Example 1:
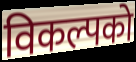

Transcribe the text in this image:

विकल्पको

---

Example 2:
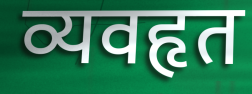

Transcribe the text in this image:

व्यवहृत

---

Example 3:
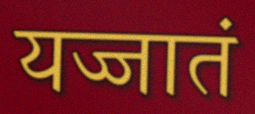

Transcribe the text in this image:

यज्जातं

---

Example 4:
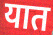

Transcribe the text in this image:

यात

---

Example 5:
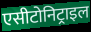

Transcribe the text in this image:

एसीटोनिट्राइल